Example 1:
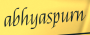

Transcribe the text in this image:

abhyaspurn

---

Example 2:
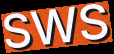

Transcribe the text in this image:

SWS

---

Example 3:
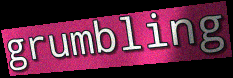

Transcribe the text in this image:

grumbling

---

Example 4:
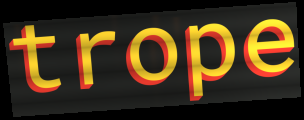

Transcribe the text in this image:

trope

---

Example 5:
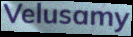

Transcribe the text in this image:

Velusamy